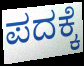
ಪದಕ್ಕೆ